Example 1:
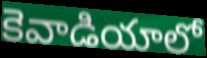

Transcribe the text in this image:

కెవాడియాలో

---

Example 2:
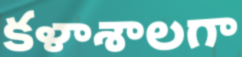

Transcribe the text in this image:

కళాశాలగా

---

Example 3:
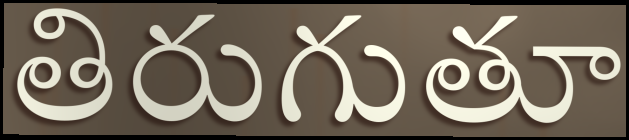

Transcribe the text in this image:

తిరుగుతూ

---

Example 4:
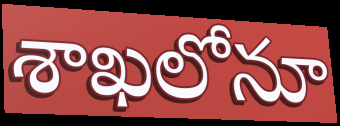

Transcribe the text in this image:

శాఖలోనూ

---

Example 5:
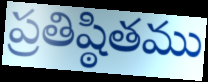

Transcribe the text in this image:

ప్రతిష్ఠితము